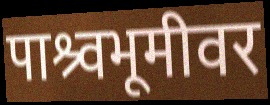
पाश्र्वभूमीवर